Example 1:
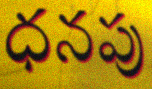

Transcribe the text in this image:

ధనపు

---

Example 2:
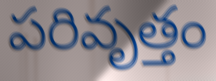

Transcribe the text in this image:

పరివృత్తం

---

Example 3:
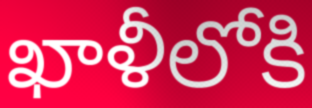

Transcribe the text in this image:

ఖాళీలోకి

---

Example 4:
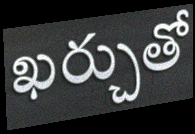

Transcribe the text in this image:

ఖర్చుతో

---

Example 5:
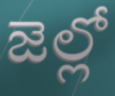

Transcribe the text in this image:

జెల్లో